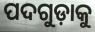
ପଦଗୁଡ଼ାକୁ